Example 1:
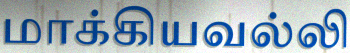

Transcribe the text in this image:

மாக்கியவல்லி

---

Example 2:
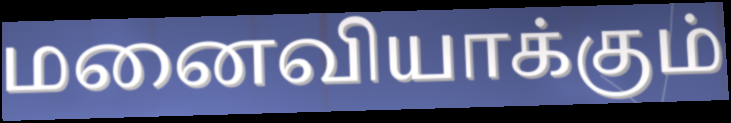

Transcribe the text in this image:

மனைவியாக்கும்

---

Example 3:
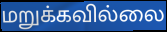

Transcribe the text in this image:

மறுக்கவில்லை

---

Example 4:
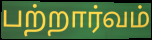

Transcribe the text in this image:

பற்றார்வம்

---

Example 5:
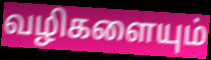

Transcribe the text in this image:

வழிகளையும்